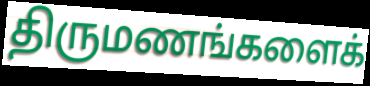
திருமணங்களைக்